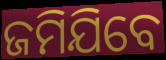
ଜମିଯିବେ